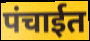
पंचाईत